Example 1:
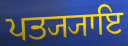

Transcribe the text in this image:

ਪਤ੍ਯ੍ਯਾਇ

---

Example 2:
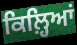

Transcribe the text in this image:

ਕਿਲ਼੍ਹਿਆਂ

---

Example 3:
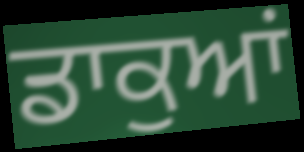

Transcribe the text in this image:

ਡਾਕੁਆਂ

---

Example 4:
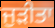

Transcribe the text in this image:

ਜੁੜੀਤਾ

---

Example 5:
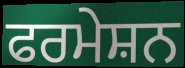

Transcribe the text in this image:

ਫਰਮੇਸ਼ਨ